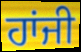
ਹਾਂਜੀ